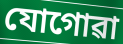
যোগোৱা